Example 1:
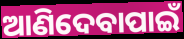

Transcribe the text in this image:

ଆଣିଦେବାପାଇଁ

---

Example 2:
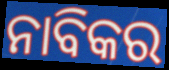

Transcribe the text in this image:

ନାବିକର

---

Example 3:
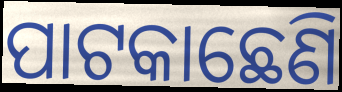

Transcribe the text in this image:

ପାଟକାଛେଣି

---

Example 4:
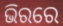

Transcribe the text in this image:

ଭିରରେ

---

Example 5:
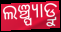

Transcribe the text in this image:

ଲଞ୍ଚ୍ପ୍ୟାଡ୍ରୁ